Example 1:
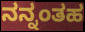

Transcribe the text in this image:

ನನ್ನಂತಹ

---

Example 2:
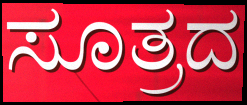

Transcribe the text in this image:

ಸೂತ್ರದ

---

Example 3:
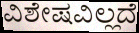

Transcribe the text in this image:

ವಿಶೇಷವಿಲ್ಲದೆ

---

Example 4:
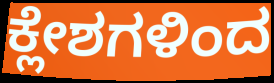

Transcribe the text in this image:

ಕ್ಲೇಶಗಳಿಂದ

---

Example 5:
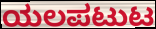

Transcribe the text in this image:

ಯಲಪಟುಟ